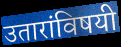
उतारांविषयी